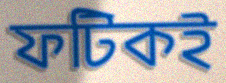
ফটিকই